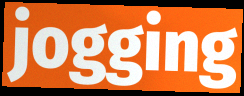
jogging